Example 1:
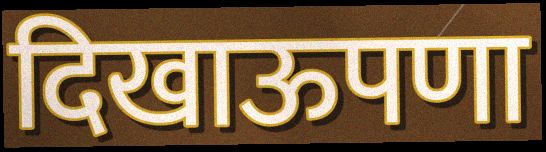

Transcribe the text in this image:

दिखाऊपणा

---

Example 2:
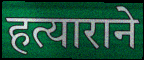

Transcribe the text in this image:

हत्याराने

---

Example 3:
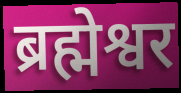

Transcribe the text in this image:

ब्रह्मेश्वर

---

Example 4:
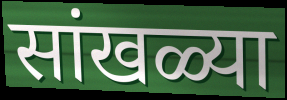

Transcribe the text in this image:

सांखळ्या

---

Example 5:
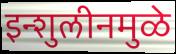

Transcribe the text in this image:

इन्शुलीनमुळे